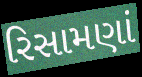
રિસામણાં